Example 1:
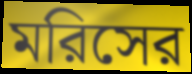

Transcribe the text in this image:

মরিসের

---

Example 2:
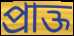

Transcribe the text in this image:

প্রাক্ত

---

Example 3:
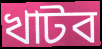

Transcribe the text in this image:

খাটব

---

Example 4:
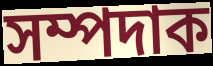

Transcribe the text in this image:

সম্পদাক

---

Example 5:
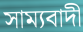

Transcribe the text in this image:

সাম্যবাদী